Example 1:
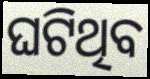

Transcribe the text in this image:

ଘଟିଥିବ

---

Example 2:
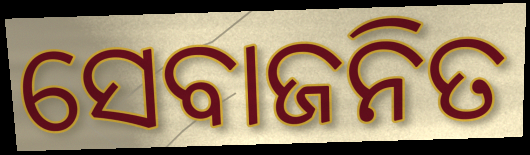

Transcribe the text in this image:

ସେବାଜନିତ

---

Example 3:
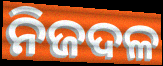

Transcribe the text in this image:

ନିଜଦଳ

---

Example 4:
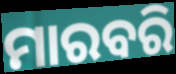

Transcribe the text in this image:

ମାରବରି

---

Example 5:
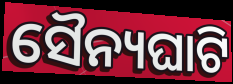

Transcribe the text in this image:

ସୈନ୍ୟଘାଟି